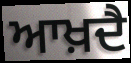
ਆਖ਼ਦੈ